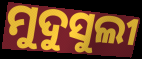
ମୁଦୁସୁଲୀ